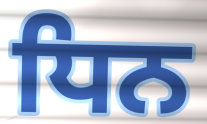
ਧਿਨ